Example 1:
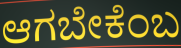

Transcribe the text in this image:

ಆಗಬೇಕೆಂಬ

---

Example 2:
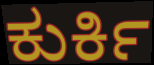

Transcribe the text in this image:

ಕುರ್ಕಿ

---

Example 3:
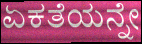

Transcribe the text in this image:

ಏಕತೆಯನ್ನೇ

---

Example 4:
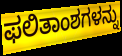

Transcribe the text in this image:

ಫಲಿತಾಂಶಗಳನ್ನು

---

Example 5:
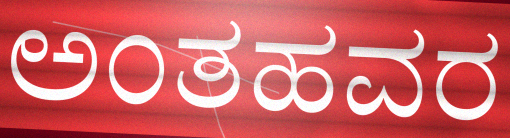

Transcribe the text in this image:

ಅಂತಹವರ